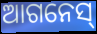
ଆଗନେସ୍